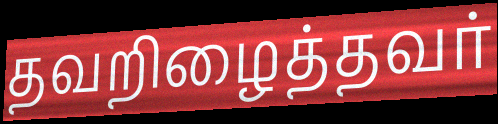
தவறிழைத்தவர்